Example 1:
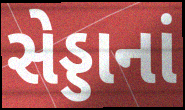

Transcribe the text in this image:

સેડ્ડાનાં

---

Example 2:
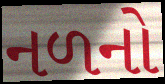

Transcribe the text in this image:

નળનો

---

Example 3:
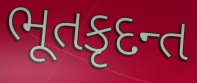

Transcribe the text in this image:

ભૂતકૃદન્ત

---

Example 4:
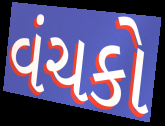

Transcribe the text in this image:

વંચકો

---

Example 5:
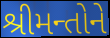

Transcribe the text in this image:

શ્રીમન્તોને